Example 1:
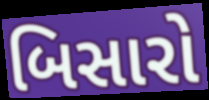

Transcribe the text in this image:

બિસારો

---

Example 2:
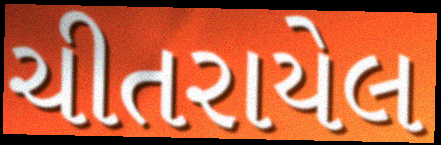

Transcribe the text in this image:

ચીતરાયેલ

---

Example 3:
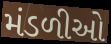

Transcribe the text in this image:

મંડળીઓ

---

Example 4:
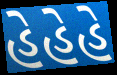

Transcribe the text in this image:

હેહેહે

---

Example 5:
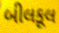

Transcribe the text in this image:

બીલકૂલ